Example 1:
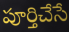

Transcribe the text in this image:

పూర్తిచేసే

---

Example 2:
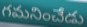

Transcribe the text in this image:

గమనించేడు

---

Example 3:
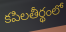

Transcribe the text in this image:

కపిలతీర్థంలో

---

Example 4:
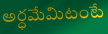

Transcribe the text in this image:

అర్ధమేమిటంటే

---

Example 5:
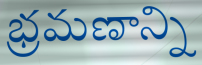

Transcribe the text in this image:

భ్రమణాన్ని